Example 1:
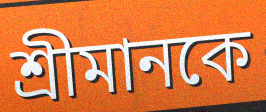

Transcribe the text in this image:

শ্রীমানকে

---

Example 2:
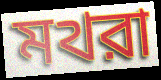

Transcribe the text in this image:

মথরা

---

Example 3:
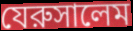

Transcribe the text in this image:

যেরুসালেম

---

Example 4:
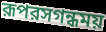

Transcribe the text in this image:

রূপরসগন্ধময়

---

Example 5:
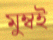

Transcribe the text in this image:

মুম্বই